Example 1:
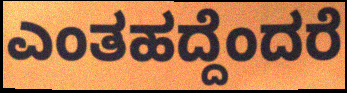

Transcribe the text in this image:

ಎಂತಹದ್ದೆಂದರೆ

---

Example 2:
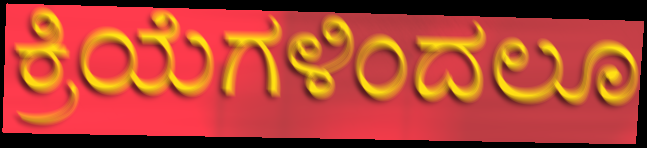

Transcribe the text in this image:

ಕ್ರಿಯೆಗಳಿಂದಲೂ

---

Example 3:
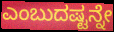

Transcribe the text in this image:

ಎಂಬುದಷ್ಟನ್ನೇ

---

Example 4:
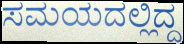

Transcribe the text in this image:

ಸಮಯದಲ್ಲಿದ್ದ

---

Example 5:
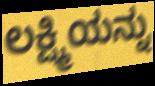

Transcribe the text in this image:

ಲಕ್ಷ್ಮಿಯನ್ನು